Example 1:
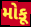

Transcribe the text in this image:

મોકૂ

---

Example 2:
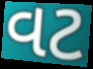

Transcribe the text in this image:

વટ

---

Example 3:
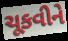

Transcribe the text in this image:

ચૂકવીને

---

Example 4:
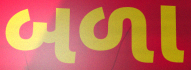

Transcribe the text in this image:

બળા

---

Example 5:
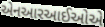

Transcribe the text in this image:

એનઆરઆઈઓએ